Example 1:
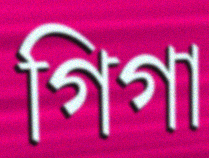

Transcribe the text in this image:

গিগা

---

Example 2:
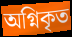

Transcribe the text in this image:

অগ্নিকৃত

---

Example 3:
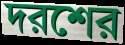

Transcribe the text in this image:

দরশের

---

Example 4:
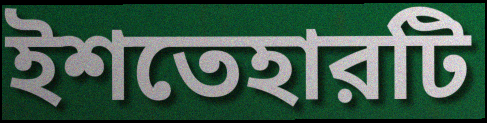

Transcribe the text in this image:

ইশতেহারটি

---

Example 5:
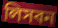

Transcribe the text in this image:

লিসবন